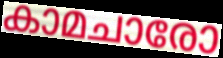
കാമചാരോ